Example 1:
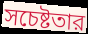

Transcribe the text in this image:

সচেষ্টতার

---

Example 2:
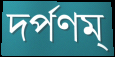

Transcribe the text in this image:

দর্পণম্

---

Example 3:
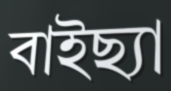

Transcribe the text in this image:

বাইছ্যা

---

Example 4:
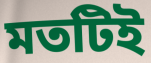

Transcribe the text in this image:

মতটিই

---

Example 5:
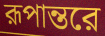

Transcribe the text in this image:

রূপান্তরে